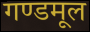
गण्डमूल